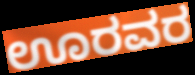
ಊರವರ